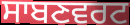
ਸਾਬਣਵਰਟ